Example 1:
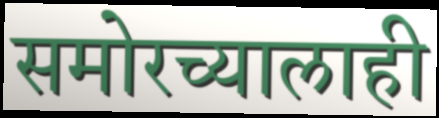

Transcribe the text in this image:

समोरच्यालाही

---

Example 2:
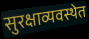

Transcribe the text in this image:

सुरक्षाव्यवस्थेत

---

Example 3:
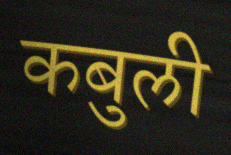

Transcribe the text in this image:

कबुली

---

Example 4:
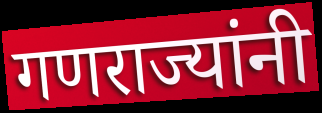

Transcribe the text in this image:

गणराज्यांनी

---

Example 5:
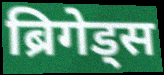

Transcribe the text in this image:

ब्रिगेड्स